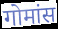
गोमांस